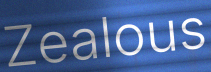
Zealous